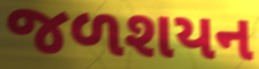
જળશયન